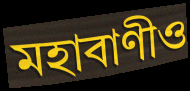
মহাবাণীও